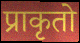
प्राकृतो